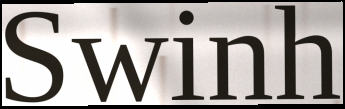
Swinh